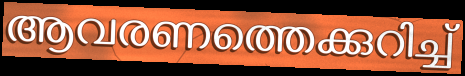
ആവരണത്തെക്കുറിച്ച്